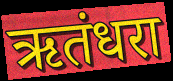
ऋतंधरा